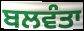
ਬਲਵੰਤਾ